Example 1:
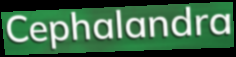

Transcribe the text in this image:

Cephalandra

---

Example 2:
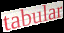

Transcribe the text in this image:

tabular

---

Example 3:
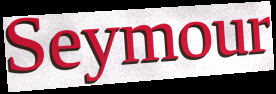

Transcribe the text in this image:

Seymour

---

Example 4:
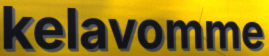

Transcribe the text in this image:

kelavomme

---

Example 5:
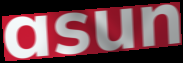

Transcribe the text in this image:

asun